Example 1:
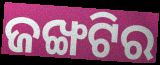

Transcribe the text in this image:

ଜଙ୍ଖଟିର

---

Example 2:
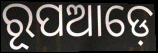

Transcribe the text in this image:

ରୂପଆଡ଼େ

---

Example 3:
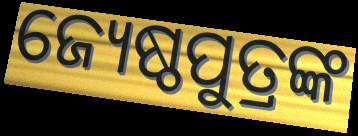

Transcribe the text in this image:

ଜ୍ୟେଷ୍ଠପୁତ୍ରଙ୍କ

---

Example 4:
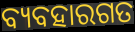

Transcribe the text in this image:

ବ୍ୟବହାରଗତ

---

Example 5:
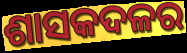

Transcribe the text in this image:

ଶାସକଦଳର